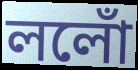
ললোঁ